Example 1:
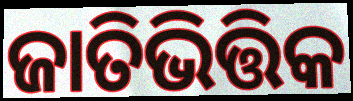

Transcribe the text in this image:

ଜାତିଭିତ୍ତିକ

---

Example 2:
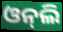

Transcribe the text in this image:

ଓନ୍‍ଲି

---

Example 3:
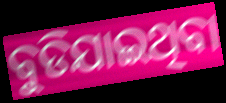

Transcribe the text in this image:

ବୁଡିଯାଇଥିବା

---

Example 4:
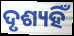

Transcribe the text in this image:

ଦୃଶ୍ୟହିଁ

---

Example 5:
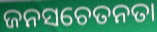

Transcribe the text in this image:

ଜନସଚେତନତା